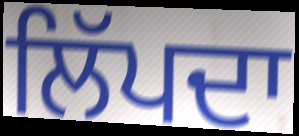
ਲਿੱਪਦਾ